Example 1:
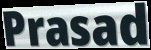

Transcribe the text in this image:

Prasad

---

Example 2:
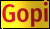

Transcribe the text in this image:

Gopi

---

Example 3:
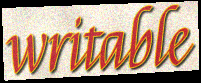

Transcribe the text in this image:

writable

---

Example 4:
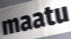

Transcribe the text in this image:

maatu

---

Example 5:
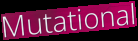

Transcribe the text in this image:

Mutational